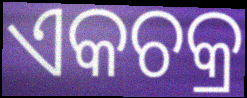
ଏକଚକ୍ର